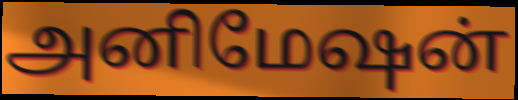
அனிமேஷன்